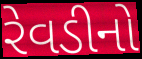
રેવડીનો